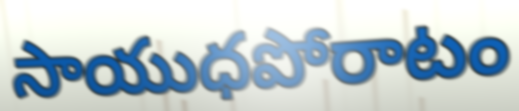
సాయుధపోరాటం